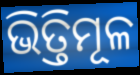
ଭିତ୍ତିମୂଳ